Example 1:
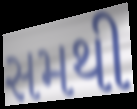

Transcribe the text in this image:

સમથી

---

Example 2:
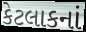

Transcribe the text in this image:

કેટલાકનાં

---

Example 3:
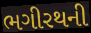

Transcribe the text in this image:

ભગીરથની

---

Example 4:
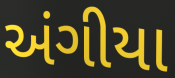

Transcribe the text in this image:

અંગીયા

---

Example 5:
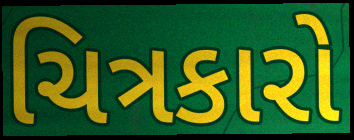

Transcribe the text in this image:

ચિત્રકારો